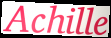
Achille